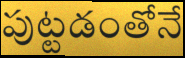
పుట్టడంతోనే